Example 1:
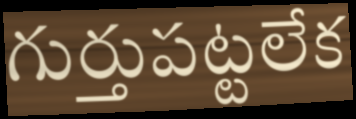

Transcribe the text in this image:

గుర్తుపట్టలేక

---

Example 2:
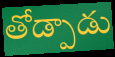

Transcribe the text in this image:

తోడ్పాడు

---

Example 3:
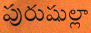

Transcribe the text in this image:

పురుషుల్లా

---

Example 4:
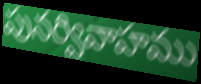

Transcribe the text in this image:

పునర్వివాహము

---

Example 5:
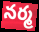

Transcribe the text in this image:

నర్మ